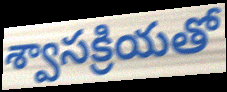
శ్వాసక్రియతో